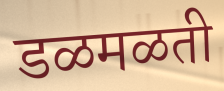
डळमळती